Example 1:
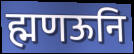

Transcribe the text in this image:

ह्मणऊनि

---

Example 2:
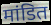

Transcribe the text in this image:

मांडित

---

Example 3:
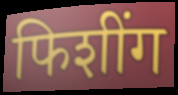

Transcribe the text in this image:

फिशींग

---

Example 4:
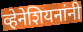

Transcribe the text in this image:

व्हेनेशियनांनी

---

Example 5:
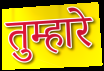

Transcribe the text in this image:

तुम्हारे